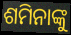
ଶମିନାଙ୍କୁ